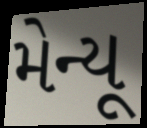
મેન્યૂ